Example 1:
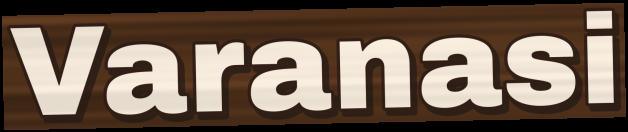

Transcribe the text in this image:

Varanasi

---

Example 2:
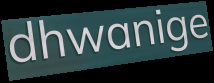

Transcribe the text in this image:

dhwanige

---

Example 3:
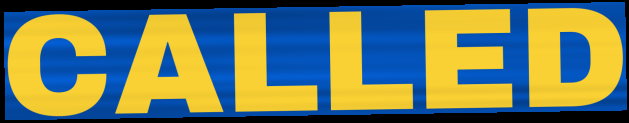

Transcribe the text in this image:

CALLED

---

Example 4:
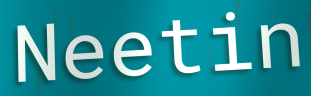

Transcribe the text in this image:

Neetin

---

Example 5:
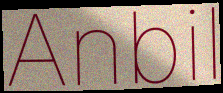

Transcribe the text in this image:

Anbil